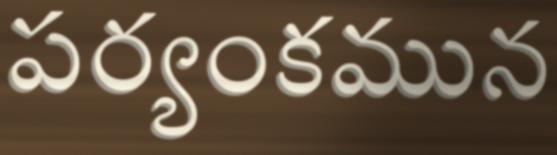
పర్యంకమున